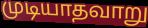
முடியாதவாறு